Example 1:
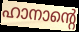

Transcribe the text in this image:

ഹാനാന്റെ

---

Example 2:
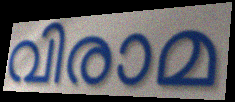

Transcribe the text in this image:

വിരാമ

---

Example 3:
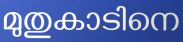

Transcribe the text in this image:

മുതുകാടിനെ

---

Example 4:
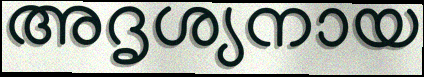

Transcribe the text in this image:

അദൃശ്യനായ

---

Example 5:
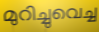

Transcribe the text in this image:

മുറിച്ചുവെച്ച